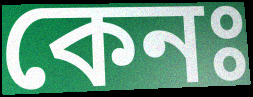
কেনঃ